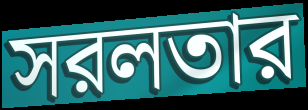
সরলতার